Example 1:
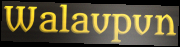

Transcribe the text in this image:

Walaupun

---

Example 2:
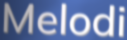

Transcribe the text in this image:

Melodi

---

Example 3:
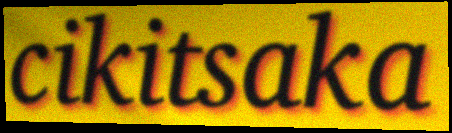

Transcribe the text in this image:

cikitsaka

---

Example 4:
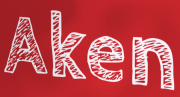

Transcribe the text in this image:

Aken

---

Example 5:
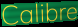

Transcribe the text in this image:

Calibre